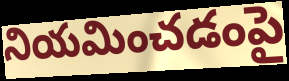
నియమించడంపై